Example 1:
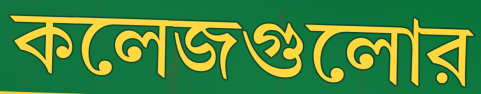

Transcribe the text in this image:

কলেজগুলোর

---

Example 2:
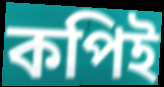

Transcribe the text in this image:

কপিই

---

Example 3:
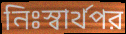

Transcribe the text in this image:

নিঃস্বার্থপর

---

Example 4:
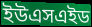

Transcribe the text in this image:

ইউএসএইড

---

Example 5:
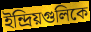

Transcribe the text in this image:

ইন্দ্রিয়গুলিকে